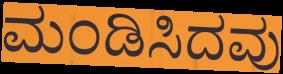
ಮಂಡಿಸಿದವು